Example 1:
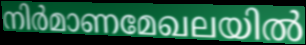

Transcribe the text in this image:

നിർമാണമേഖലയിൽ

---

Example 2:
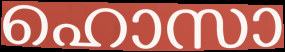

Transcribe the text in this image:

ഹൊസാ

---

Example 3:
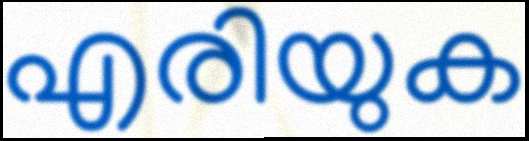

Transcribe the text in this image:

എരിയുക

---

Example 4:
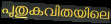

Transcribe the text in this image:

പുതുകവിതയിലെ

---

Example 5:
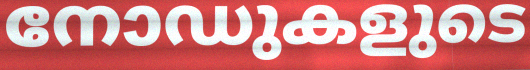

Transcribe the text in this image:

നോഡുകളുടെ